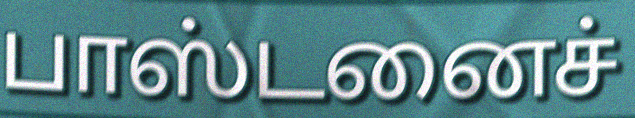
பாஸ்டனைச்